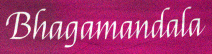
Bhagamandala